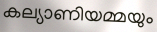
കല്യാണിയമ്മയും